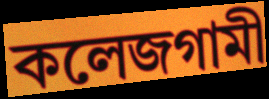
কলেজগামী